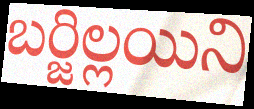
బర్జిల్లయిని